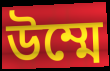
উম্মে